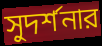
সুদর্শনার